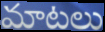
మాటలు